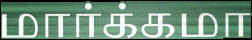
மார்க்கமா